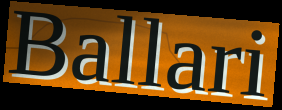
Ballari